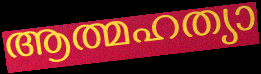
ആത്മഹത്യാ